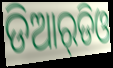
ଡିଆର୍‌ଡିଓ